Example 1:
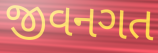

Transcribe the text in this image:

જીવનગત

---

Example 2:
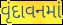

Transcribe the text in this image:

વૃંદાવનમાં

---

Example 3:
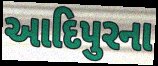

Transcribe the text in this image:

આદિપુરના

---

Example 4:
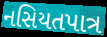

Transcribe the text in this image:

નસિયતપાત્ર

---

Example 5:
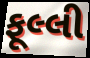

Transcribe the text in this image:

ફૂલ્લી